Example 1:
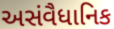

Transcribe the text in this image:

અસંવૈધાનિક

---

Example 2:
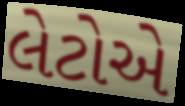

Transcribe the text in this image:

લેટોએ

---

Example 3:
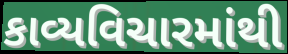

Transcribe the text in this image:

કાવ્યવિચારમાંથી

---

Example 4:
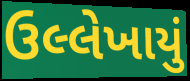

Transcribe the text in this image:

ઉલ્લેખાયું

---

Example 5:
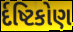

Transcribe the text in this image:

ર્દષ્ટિકોણ